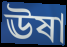
ঊষা